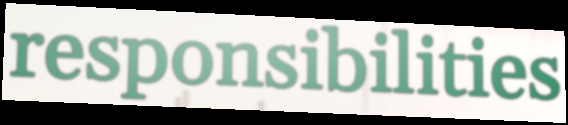
responsibilities